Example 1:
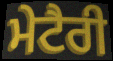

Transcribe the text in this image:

ਮੇਟੈਰੀ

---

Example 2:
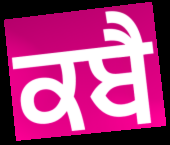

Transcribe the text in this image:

ਕਬੈ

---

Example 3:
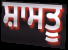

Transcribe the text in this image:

ਸ਼ਾਸਤੂ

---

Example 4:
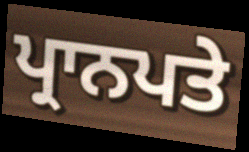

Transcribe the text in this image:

ਪ੍ਰਾਨਪਤੇ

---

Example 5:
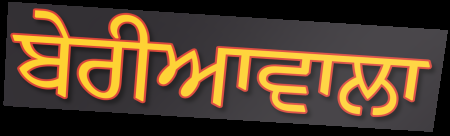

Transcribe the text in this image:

ਬੇਰੀਆਵਾਲਾ